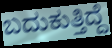
ಬದುಕುತ್ತಿದ್ದೆ